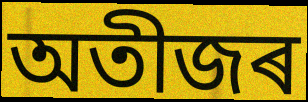
অতীজৰ